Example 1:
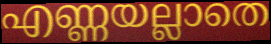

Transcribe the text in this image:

എണ്ണയല്ലാതെ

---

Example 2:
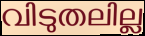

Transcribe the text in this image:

വിടുതലില്ല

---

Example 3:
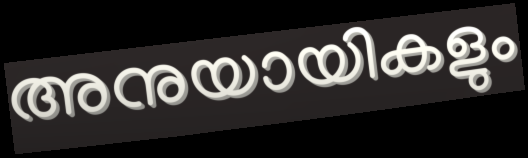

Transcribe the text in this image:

അനുയായികളും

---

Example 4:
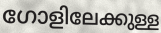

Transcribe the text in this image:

ഗോളിലേക്കുള്ള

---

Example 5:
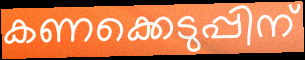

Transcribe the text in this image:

കണക്കെടുപ്പിന്